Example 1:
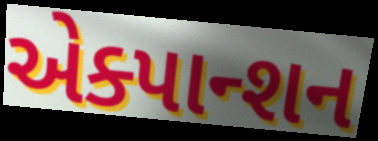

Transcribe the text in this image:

એક્પાન્શન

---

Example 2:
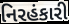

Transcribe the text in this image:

નિરહંકારી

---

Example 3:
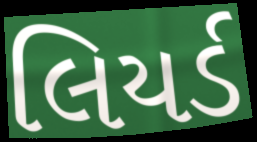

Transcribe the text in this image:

લિયર્ડ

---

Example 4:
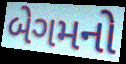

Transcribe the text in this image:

બેગમનો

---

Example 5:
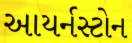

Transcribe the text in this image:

આયર્નસ્ટોન